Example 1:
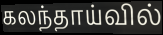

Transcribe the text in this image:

கலந்தாய்வில்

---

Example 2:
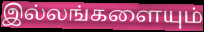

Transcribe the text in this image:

இல்லங்களையும்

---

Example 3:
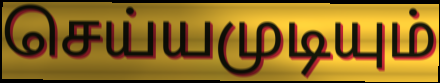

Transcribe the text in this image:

செய்யமுடியும்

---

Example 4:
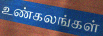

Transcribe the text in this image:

உண்கலங்கள்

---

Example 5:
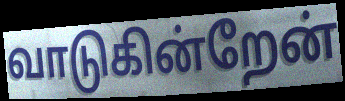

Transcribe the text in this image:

வாடுகின்றேன்